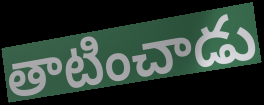
తాటించాడు